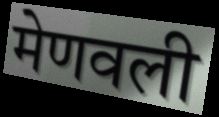
मेणवली